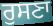
ਰੁਸਣਾ